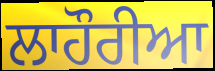
ਲਾਹੌਰੀਆ